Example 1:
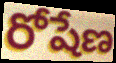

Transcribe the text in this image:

రోషేణ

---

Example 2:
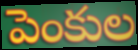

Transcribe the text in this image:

పెంకుల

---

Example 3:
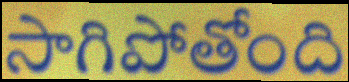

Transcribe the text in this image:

సాగిపోతోంది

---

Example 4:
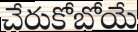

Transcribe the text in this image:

చేరుకోబోయే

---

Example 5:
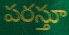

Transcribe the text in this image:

పరస్తూ